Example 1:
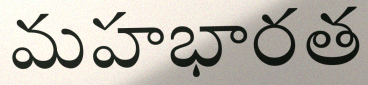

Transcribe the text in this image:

మహభారత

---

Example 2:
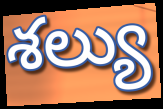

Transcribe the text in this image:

శల్యు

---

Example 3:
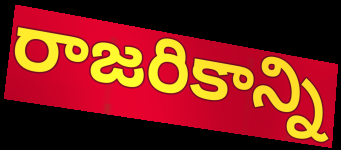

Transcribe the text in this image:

రాజరికాన్ని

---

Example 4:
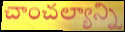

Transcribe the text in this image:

చాంచల్యాన్ని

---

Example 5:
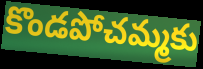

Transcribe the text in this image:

కొండపోచమ్మకు